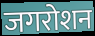
जगरोशन